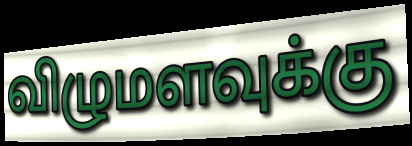
விழுமளவுக்கு